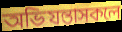
অভিযন্তাসকলে